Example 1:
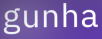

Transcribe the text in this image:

gunha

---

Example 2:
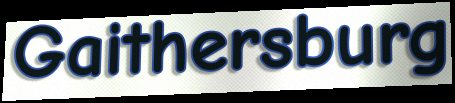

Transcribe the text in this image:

Gaithersburg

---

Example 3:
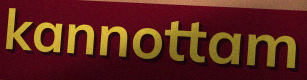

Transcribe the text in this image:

kannottam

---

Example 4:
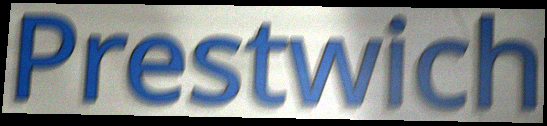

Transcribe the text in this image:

Prestwich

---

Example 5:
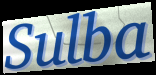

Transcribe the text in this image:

Sulba